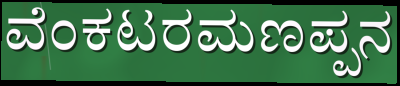
ವೆಂಕಟರಮಣಪ್ಪನ